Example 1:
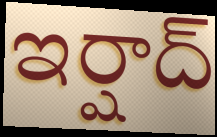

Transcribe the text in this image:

ఇర్షాద్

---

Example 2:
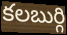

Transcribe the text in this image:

కలబుర్గి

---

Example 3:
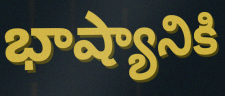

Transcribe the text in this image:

భాష్యానికి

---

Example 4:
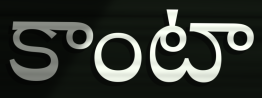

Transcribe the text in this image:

కాంటా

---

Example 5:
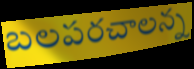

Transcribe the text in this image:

బలపరచాలన్న